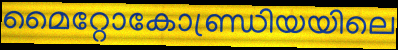
മൈറ്റോകോണ്ഡ്രിയയിലെ